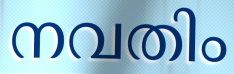
നവതിം